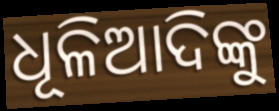
ଧୂଳିଆଦିଙ୍କୁ